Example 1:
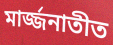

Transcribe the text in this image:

মার্জ্জনাতীত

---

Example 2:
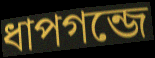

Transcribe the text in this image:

ধাপগন্জে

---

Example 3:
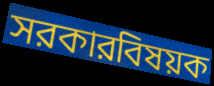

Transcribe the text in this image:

সরকারবিষয়ক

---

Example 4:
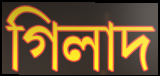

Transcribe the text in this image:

গিলাদ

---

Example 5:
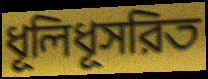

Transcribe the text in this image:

ধূলিধূসরিত